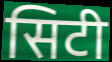
सिटी